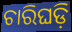
ଚାରିଘଡ଼ି